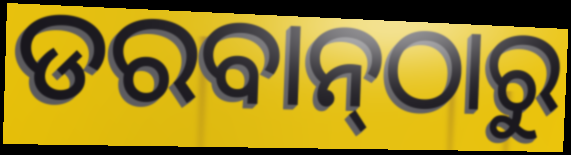
ଡରବାନ୍‌ଠାରୁ